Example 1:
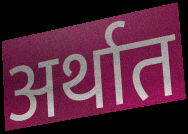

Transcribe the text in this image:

अर्थात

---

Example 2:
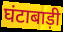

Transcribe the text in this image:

घंटाबाड़ी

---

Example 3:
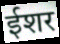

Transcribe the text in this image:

ईशर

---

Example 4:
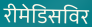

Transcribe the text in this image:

रीमेडिसविर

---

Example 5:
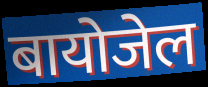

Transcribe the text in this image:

बायोजेल